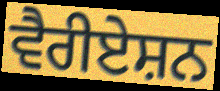
ਵੈਰੀਏਸ਼ਨ